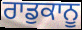
ਰਾਡੁਕਾਨੂ